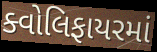
ક્વોલિફાયરમાં